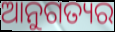
ଆନୁଗତ୍ୟର